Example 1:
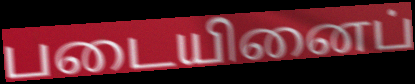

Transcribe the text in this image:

படையினைப்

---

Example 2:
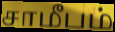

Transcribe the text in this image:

சாமீபம்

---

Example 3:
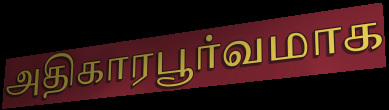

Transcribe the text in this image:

அதிகாரபூர்வமாக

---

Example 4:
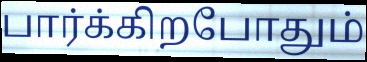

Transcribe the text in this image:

பார்க்கிறபோதும்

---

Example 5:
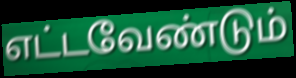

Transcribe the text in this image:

எட்டவேண்டும்